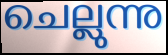
ചെല്ലുന്നു